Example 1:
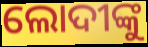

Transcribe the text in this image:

ଲୋଦୀଙ୍କୁ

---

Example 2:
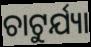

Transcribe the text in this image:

ଚାଟୁର୍ଯ୍ୟା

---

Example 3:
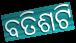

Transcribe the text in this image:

ବତିଶଟି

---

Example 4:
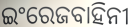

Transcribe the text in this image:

ଇଂରେଜବାହିନୀ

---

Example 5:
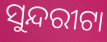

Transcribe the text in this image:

ସୁନ୍ଦରୀଟା